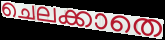
ചെലക്കാതെ